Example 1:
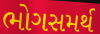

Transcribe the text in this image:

ભોગસમર્થ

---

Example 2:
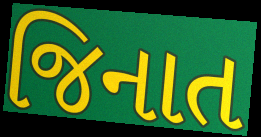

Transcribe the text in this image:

જિનાત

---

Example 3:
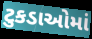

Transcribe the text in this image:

ટુકડાઓમાં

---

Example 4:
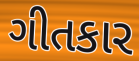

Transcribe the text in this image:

ગીતકાર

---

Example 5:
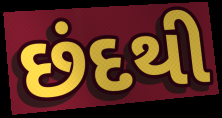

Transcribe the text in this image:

છંદથી